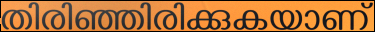
തിരിഞ്ഞിരിക്കുകയാണ്